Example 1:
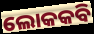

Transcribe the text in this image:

ଲୋକକବି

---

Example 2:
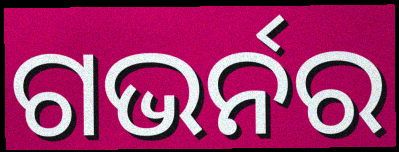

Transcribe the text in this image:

ଗଭର୍ନର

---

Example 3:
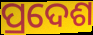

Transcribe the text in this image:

ପ୍ରଦେଶ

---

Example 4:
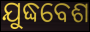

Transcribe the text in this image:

ଯୁଦ୍ଧବେଶ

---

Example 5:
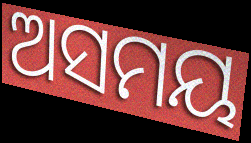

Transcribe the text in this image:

ଅସମୟ